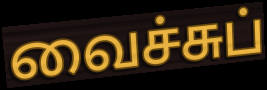
வைச்சுப்